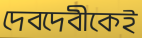
দেবদেবীকেই